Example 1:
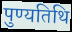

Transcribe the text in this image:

पुण्यतिथि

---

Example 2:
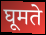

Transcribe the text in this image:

घूमते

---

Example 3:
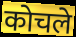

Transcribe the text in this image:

कोचले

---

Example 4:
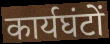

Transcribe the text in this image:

कार्यघंटों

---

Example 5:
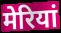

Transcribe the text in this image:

मेरियां